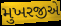
મુખરજીએ